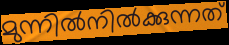
മുന്നിൽനിൽക്കുന്നത്